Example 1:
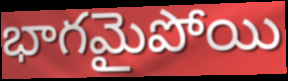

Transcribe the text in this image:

భాగమైపోయి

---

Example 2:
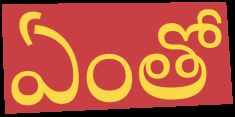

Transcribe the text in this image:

ఏంతో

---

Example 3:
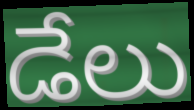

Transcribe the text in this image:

డేలు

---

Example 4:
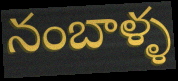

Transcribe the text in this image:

నంబాళ్ళ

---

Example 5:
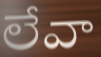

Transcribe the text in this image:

లేవా